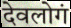
देवलोगं